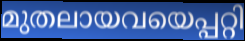
മുതലായവയെപ്പറ്റി